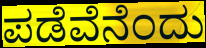
ಪಡೆವೆನೆಂದು